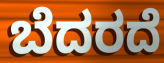
ಬೆದರದೆ